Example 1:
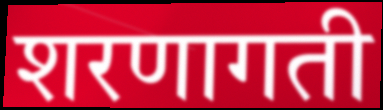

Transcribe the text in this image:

शरणागती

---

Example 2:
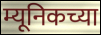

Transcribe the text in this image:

म्यूनिकच्या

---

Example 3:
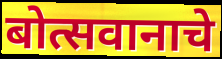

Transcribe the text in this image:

बोत्सवानाचे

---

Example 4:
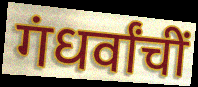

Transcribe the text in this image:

गंधर्वांचीं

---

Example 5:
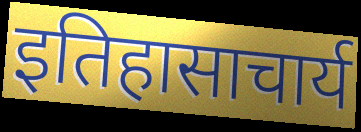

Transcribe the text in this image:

इतिहासाचार्य